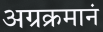
अग्रक्रमानं